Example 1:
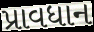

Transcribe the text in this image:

પ્રાવધાન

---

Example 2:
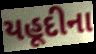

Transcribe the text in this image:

યહૂદીના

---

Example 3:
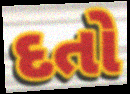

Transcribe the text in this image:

દતો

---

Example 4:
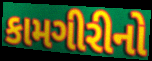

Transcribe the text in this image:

કામગીરીનો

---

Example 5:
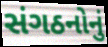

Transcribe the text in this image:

સંગઠનોનું